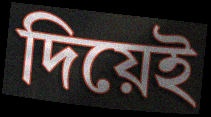
দিয়েই